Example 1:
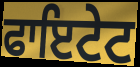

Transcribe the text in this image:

ਫਾਇਟੇਟ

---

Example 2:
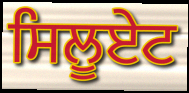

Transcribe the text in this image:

ਸਿਲੂਏਟ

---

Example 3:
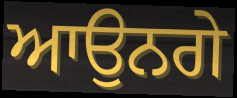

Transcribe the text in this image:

ਆਉਨਗੇ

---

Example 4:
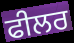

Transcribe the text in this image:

ਫੀਲਰ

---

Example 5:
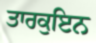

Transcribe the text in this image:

ਤਾਰਕੁਇਨ